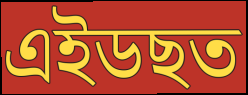
এইডছত